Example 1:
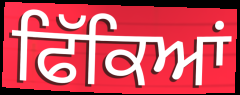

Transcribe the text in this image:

ਫਿੱਕਿਆਂ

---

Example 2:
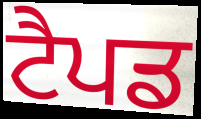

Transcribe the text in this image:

ਟੈਪਡ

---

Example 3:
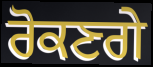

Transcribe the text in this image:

ਰੋਕਣਗੇ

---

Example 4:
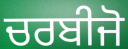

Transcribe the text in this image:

ਚਰਬੀਜੋ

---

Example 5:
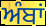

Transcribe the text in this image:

ਅੰਬਾਂ